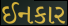
ઈનકાર